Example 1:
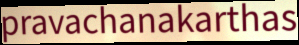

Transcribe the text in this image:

pravachanakarthas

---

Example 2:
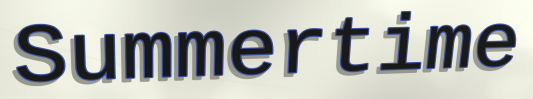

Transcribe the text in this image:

Summertime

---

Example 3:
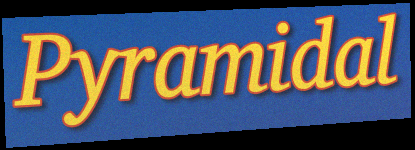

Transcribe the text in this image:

Pyramidal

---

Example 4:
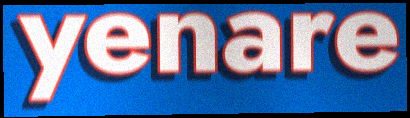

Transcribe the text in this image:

yenare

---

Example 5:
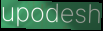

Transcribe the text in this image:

upodesh